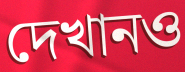
দেখানও